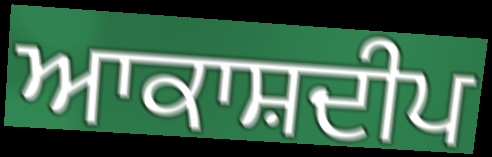
ਆਕਾਸ਼ਦੀਪ